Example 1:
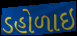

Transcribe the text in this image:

ડહોળાઇ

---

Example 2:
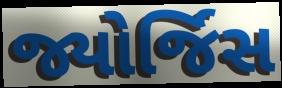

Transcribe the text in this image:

જ્યોર્જિસ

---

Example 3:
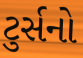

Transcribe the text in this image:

ટુર્સનો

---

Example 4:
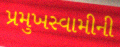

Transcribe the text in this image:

પ્રમુખસ્વામીની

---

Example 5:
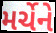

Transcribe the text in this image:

મર્ચેને